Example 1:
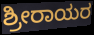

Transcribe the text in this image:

ಶ್ರೀರಾಯರ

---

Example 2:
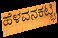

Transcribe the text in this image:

ಹೆಳವನಕಟ್ಟೆ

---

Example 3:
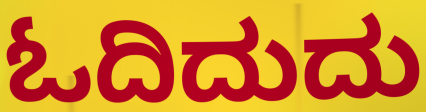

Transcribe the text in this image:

ಓದಿದುದು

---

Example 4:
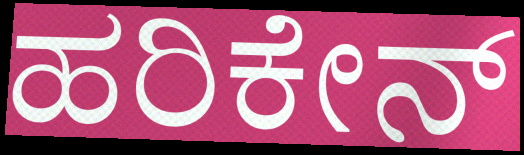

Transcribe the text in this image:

ಹರಿಕೇನ್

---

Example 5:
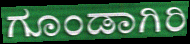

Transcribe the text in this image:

ಗೂಂಡಾಗಿರಿ